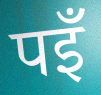
पइँ